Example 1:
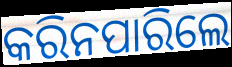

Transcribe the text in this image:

କରିନପାରିଲେ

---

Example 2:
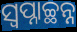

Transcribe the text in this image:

ସ୍ଵପ୍ନାଚ୍ଛନ୍ନ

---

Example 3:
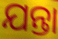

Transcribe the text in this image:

ଯନ୍ତା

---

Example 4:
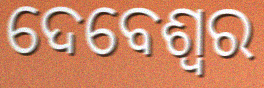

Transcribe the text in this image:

ଦେବେଶ୍ୱର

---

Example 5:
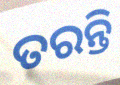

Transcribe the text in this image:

ତରନ୍ତି